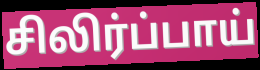
சிலிர்ப்பாய்